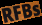
RFBs